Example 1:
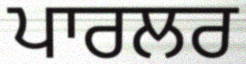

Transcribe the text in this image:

ਪਾਰਲਰ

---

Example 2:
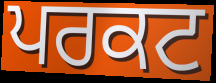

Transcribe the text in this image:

ਪਰਕਟ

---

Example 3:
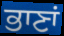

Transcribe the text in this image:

ਭਾਣਾਂ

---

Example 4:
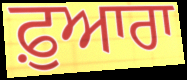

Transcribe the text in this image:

ਫ਼ੁਆਰਾ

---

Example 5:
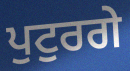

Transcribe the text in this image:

ਪੁਟੁਰਗੇ